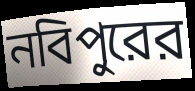
নবিপুরের